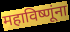
महाविष्णूंना